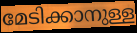
മേടിക്കാനുള്ള